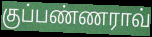
குப்பண்ணராவ்